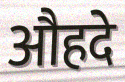
औहदे